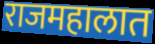
राजमहालात